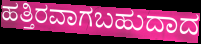
ಹತ್ತಿರವಾಗಬಹುದಾದ